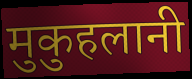
मुकुहलानी